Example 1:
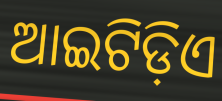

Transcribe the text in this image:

ଆଇଟିଡ଼ିଏ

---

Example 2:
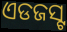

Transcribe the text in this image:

ଏଡଜସ୍ଟ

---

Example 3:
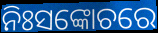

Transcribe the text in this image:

ନିଃସଙ୍କୋଚରେ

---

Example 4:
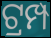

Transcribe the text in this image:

ଟ୍ରମ୍ପ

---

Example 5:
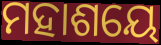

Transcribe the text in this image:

ମହାଶୟେ